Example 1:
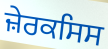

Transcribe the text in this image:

ਜ਼ੇਰਕਸਿਸ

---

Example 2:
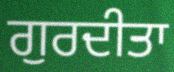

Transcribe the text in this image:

ਗੁਰਦੀਤਾ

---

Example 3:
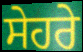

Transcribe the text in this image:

ਸੇਹਰੇ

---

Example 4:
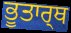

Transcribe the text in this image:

ਭੂਤਾਰ੍ਥ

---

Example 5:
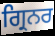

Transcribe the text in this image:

ਗ੍ਰਿਨਰ